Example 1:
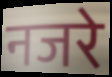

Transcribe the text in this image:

नजरे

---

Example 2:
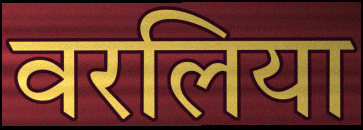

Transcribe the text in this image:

वरलिया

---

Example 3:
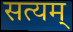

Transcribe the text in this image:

सत्यम्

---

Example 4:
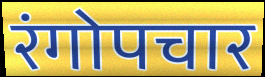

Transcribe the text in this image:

रंगोपचार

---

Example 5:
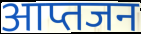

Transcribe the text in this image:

आप्तजन